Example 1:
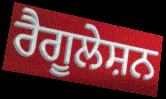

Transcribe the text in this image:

ਰੈਗੂਲੇਸ਼ਨ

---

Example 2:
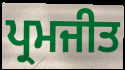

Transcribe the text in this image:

ਪ੍ਰਮਜੀਤ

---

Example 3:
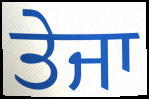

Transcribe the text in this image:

ਤੇਜਾ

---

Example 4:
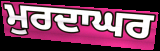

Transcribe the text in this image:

ਮੁਰਦਾਘਰ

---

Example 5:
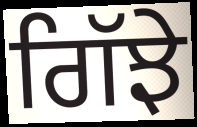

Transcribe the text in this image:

ਗਿੱਝੇ